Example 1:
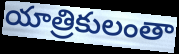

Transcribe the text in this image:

యాత్రికులంతా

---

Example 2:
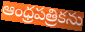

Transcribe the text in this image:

ఆంధ్రపత్రికను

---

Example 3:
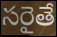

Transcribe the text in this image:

సరైతే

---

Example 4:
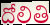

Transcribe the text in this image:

దోలితి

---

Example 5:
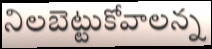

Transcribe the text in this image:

నిలబెట్టుకోవాలన్న